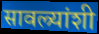
सावल्यांशी